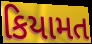
કિયામત